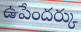
ఉపేందర్కు